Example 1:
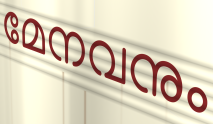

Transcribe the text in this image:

മേനവനും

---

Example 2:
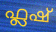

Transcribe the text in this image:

ഫ്ലഷ്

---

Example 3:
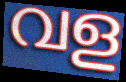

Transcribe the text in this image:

വള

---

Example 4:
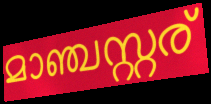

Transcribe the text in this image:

മാഞ്ചസ്റ്റര്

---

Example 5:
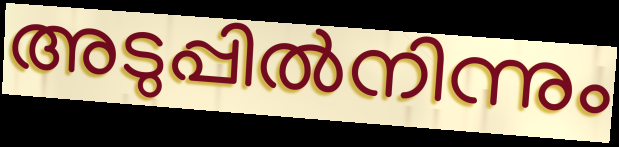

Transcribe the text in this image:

അടുപ്പിൽനിന്നും